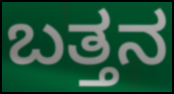
ಬತ್ತನ